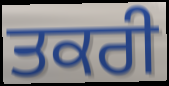
ਤਕਰੀ